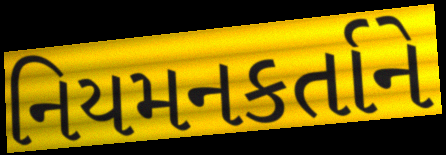
નિયમનકર્તાને